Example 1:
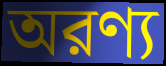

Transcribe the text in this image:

অরণ্য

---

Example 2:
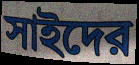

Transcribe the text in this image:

সাইদের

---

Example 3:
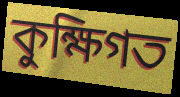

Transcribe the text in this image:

কুক্ষিগত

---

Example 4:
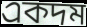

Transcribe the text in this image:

একদম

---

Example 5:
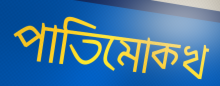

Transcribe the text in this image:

পাতিমোক্খ